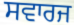
ਸਵਾਰਜ